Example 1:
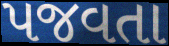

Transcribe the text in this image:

પજવતા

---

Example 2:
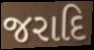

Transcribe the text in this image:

જરાદિ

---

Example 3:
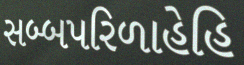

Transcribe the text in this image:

સબ્બપરિળાહેહિ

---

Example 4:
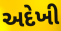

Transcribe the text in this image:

અદેખી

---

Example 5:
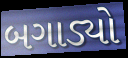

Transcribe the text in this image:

બગાડ્યો